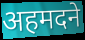
अहमदने